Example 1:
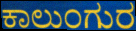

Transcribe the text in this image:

ಕಾಲುಂಗುರ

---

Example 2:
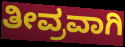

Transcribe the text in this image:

ತೀವ್ರವಾಗಿ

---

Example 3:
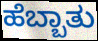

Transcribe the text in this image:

ಹೆಬ್ಬಾತು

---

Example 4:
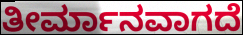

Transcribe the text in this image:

ತೀರ್ಮಾನವಾಗದೆ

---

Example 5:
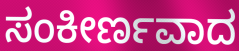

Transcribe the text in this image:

ಸಂಕೀರ್ಣವಾದ